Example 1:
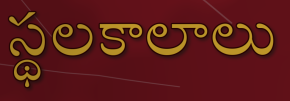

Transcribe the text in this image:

స్థలకాలాలు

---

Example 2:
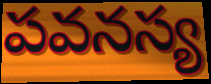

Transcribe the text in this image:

పవనస్య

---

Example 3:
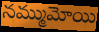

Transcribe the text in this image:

నమ్ముమోయి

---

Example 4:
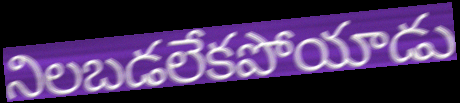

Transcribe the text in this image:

నిలబడలేకపోయాడు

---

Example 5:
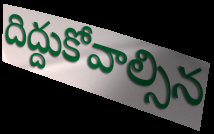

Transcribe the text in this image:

దిద్దుకోవాల్సిన